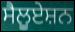
ਸੈਲੂਏਸ਼ਨ